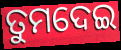
ତୁମଦେଇ